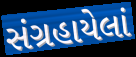
સંગ્રહાયેલાં